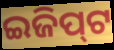
ଇଜିପ୍‍ଟ